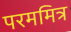
परममित्र